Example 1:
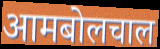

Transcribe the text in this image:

आमबोलचाल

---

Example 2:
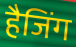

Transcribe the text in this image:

हैजिंग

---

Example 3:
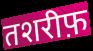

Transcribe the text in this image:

तशरीफ़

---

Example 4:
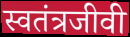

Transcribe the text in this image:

स्वतंत्रजीवी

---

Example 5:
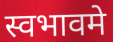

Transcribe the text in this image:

स्वभावमे